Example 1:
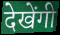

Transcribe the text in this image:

देखेंगी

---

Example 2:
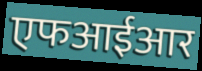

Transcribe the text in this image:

एफआईआर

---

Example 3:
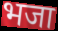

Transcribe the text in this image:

भजा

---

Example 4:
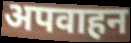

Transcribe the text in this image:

अपवाहन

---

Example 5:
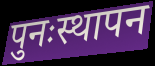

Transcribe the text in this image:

पुनःस्थापन